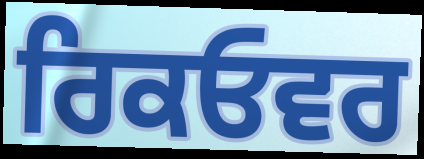
ਰਿਕਓਵਰ